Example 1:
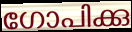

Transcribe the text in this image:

ഗോപിക്കു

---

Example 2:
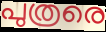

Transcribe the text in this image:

പുത്രരെ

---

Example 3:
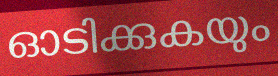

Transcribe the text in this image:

ഓടിക്കുകയും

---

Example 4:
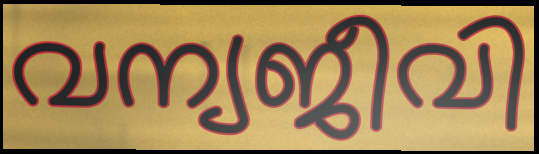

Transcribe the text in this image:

വന്യജീവി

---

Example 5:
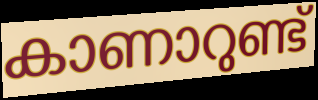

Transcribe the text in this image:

കാണാറുണ്ട്